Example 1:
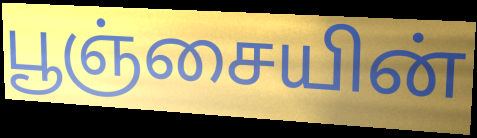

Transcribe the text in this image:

பூஞ்சையின்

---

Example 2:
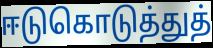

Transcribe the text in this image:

ஈடுகொடுத்துத்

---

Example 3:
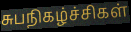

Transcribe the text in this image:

சுபநிகழ்ச்சிகள்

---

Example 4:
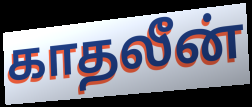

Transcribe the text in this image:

காதலீன்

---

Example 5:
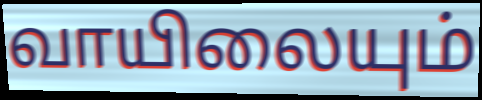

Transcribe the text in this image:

வாயிலையும்